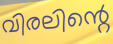
വിരലിന്റെ